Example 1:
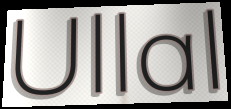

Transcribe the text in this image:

Ullal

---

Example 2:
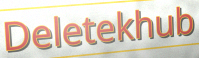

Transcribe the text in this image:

Deletekhub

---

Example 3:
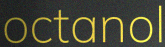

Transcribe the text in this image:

octanol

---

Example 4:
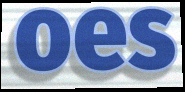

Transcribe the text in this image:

oes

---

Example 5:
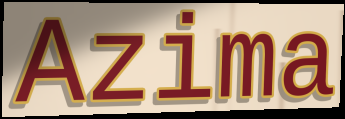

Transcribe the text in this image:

Azima